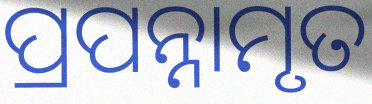
ପ୍ରପନ୍ନାମୃତ